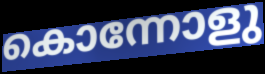
കൊന്നോളു